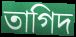
তাগিদ